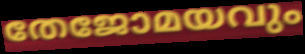
തേജോമയവും